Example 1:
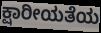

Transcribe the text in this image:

ಕ್ಷಾರೀಯತೆಯ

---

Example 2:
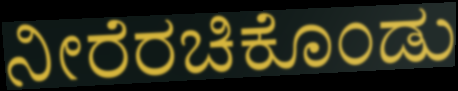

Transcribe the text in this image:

ನೀರೆರಚಿಕೊಂಡು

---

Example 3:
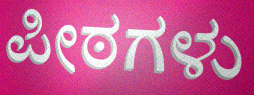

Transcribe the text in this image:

ಪೀಠಗಳು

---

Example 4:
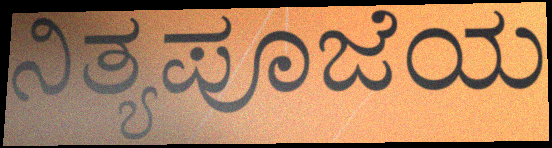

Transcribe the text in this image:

ನಿತ್ಯಪೂಜೆಯ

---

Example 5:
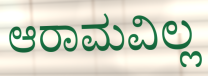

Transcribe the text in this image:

ಆರಾಮವಿಲ್ಲ